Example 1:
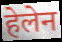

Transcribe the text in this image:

हेलेन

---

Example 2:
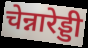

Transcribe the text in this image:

चेन्नारेड्डी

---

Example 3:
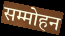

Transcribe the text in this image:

सम्मोहन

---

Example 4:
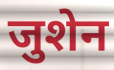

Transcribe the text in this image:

जुशेन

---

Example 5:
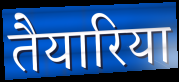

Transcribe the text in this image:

तैयारिया